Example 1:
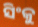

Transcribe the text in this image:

ସିଂକୁ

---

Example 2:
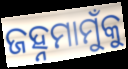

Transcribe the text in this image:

ଜହ୍ନମାମୁଁକୁ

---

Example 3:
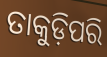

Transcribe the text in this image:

ତାକୁଡ଼ିପରି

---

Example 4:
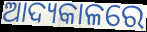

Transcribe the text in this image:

ଆଦ୍ୟକାଳରେ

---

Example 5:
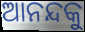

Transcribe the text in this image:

ଆନନ୍ଦକୁ